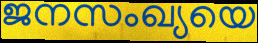
ജനസംഖ്യയെ